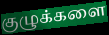
குழுக்களை